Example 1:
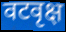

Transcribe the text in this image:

वटवृक्ष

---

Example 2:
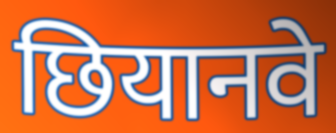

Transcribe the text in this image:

छियानवे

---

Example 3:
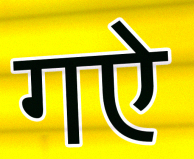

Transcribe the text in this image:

गऐ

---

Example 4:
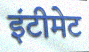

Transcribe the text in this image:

इंटीमेट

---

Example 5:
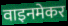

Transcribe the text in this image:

वाइनमेकर